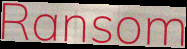
Ransom